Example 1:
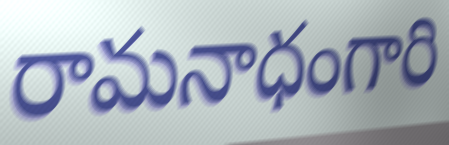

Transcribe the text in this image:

రామనాధంగారి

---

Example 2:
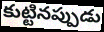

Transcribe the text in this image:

కుట్టినప్పుడు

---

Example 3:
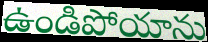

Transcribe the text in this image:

ఉండిపోయాను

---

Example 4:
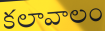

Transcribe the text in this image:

కలావాలం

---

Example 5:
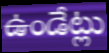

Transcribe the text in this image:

ఉండేట్లు